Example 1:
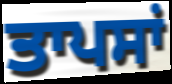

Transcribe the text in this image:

ਤਾਪਸਾਂ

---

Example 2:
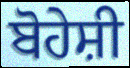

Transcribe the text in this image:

ਬੋਹੇਸ਼ੀ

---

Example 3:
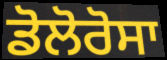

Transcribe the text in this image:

ਡੋਲੋਰੋਸਾ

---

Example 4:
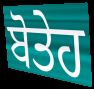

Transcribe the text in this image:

ਬੋਤੇਹ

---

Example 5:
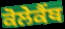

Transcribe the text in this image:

ਕੋਲੇਕੈਂਥ